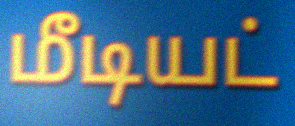
மீடியட்